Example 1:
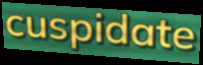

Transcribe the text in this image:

cuspidate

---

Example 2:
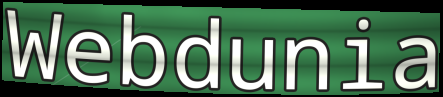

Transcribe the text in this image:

Webdunia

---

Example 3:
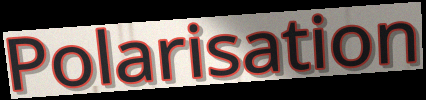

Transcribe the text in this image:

Polarisation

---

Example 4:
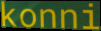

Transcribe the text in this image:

konni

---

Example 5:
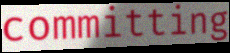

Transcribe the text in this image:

committing